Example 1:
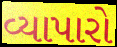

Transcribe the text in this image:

વ્યાપારો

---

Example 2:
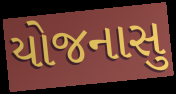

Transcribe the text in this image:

યોજનાસુ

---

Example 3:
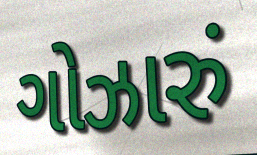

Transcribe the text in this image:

ગોઝારું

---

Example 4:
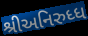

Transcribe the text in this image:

શ્રીઅનિરુધ્ધ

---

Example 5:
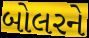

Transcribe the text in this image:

બોલરને